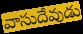
వాసుదేవుడు